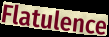
Flatulence